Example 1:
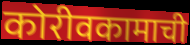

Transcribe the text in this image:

कोरीवकामाची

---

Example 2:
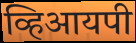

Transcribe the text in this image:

व्हिआयपी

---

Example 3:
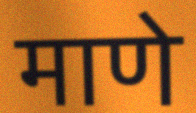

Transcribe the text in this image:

माणे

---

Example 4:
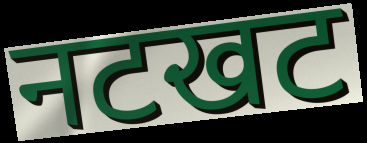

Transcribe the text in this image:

नटखट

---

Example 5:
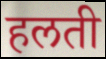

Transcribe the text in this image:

हलती